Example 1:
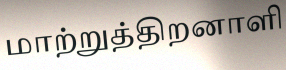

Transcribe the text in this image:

மாற்றுத்திறனாளி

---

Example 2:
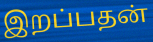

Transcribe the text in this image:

இறப்பதன்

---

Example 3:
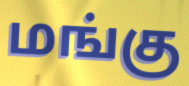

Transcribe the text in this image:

மங்கு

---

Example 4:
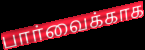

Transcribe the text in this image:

பார்வைக்காக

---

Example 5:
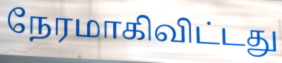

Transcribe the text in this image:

நேரமாகிவிட்டது